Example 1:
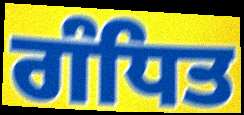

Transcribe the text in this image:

ਗੰਧਿਤ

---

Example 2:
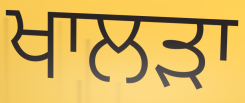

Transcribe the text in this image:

ਖਾਲੜਾ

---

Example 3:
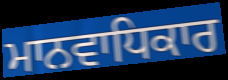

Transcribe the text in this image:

ਮਾਨਵਾਧਿਕਾਰ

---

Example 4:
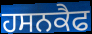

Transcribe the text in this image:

ਹਸਨਕੈਫ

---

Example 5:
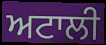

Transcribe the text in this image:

ਅਟਾਲੀ